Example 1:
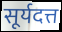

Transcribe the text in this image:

सूर्यदत्त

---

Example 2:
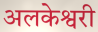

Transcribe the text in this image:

अलकेश्वरी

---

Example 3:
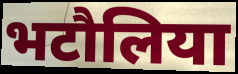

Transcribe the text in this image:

भटौलिया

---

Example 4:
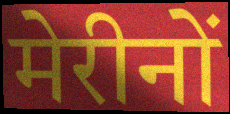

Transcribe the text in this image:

मेरीनों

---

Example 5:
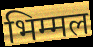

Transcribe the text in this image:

भिम्मल